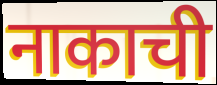
नाकाची